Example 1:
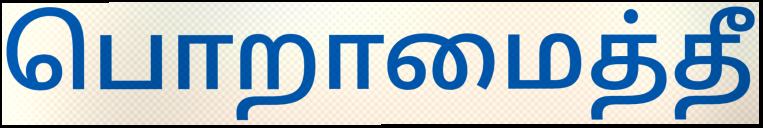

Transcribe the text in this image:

பொறாமைத்தீ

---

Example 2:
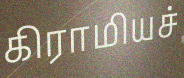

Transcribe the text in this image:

கிராமியச்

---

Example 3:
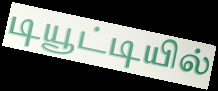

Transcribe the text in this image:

டியூட்டியில்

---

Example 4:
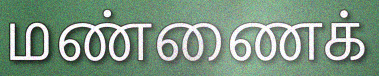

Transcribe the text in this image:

மண்ணைக்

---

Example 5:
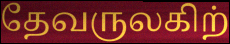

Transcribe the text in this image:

தேவருலகிற்